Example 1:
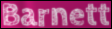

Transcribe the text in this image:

Barnett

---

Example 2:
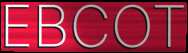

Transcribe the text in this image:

EBCOT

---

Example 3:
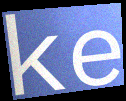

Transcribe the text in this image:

ke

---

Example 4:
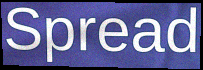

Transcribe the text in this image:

Spread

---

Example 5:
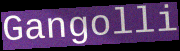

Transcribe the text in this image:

Gangolli